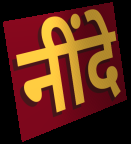
नींदे